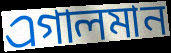
এগালমান